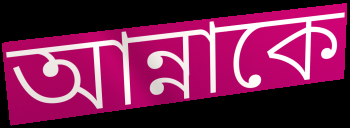
আন্নাকে